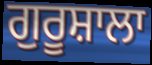
ਗੁਰੂਸ਼ਾਲਾ